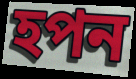
হপন